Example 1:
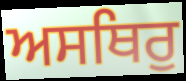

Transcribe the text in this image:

ਅਸਥਿਰੁ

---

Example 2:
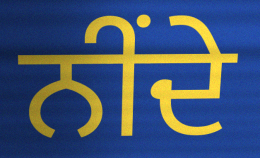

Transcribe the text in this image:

ਨੀਂਦੇ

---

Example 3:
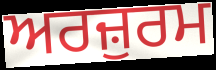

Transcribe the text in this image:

ਅਰਜ਼ੁਰਮ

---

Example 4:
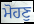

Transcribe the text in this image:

ਮੋਹਣੁ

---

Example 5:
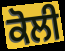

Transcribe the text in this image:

ਕੋਲੀ